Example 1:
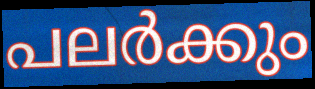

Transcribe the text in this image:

പലർക്കും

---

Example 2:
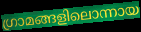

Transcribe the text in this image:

ഗ്രാമങ്ങളിലൊന്നായ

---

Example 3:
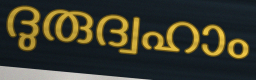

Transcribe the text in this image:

ദുരുദ്വഹാം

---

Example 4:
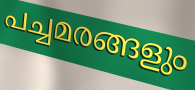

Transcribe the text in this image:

പച്ചമരങ്ങളും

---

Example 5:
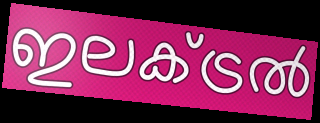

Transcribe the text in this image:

ഇലക്ട്രൽ